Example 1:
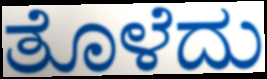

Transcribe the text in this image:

ತೊಳೆದು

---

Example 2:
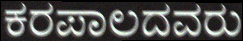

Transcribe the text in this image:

ಕರಪಾಲದವರು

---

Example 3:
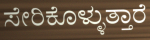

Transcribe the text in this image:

ಸೇರಿಕೊಳ್ಳುತ್ತಾರೆ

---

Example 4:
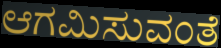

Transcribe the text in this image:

ಆಗಮಿಸುವಂತೆ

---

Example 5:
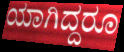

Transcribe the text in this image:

ಯಾಗಿದ್ದರೂ